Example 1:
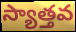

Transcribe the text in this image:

స్యాత్తవ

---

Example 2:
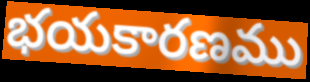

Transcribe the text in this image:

భయకారణము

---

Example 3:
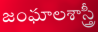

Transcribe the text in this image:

జంఘాలశాస్త్రీ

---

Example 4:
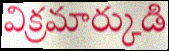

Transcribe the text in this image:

విక్రమార్కుడి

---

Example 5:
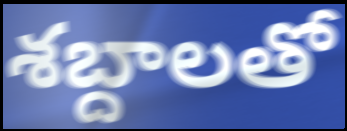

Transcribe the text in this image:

శబ్దాలతో